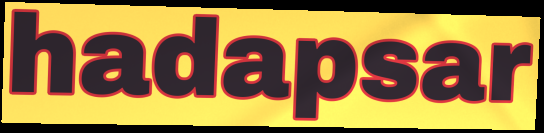
hadapsar